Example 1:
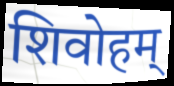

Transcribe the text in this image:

शिवोहम्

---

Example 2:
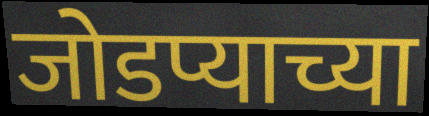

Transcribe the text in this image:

जोडप्याच्या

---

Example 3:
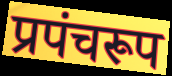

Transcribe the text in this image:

प्रपंचरूप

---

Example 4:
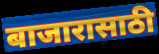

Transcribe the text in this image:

बाजारासाठी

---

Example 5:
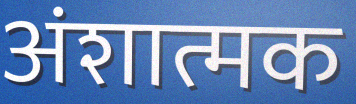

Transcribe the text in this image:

अंशात्मक